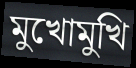
মুখোমুখি